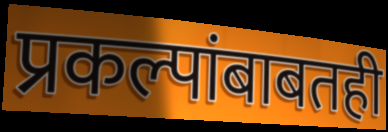
प्रकल्पांबाबतही